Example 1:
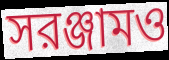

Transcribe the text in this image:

সরঞ্জামও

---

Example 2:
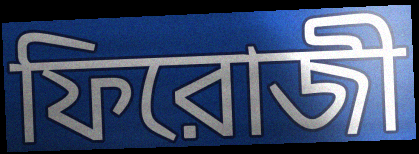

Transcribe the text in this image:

ফিরোজী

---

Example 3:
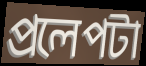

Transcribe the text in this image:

প্রলেপটা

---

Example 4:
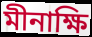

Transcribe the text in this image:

মীনাক্ষি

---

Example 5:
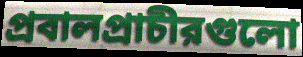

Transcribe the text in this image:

প্রবালপ্রাচীরগুলো